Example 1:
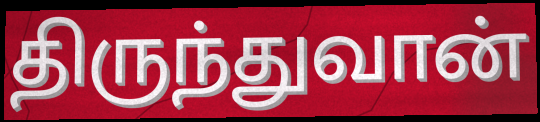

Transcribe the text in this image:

திருந்துவான்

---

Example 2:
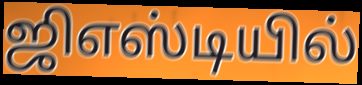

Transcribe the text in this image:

ஜிஎஸ்டியில்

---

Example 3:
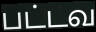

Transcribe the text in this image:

பட்டவ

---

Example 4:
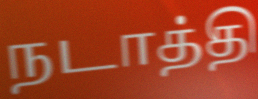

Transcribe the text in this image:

நடாத்தி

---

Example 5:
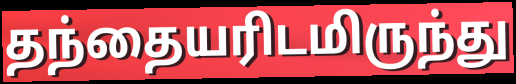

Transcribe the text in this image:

தந்தையரிடமிருந்து